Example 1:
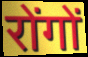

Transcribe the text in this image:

रोंगों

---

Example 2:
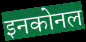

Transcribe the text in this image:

इनकोनल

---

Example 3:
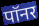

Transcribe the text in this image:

पॉनर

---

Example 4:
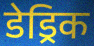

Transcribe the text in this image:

डेड्रिक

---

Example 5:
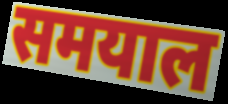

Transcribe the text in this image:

समयाल